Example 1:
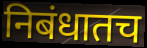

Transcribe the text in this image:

निबंधातच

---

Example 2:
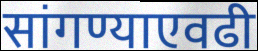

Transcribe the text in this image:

सांगण्याएवढी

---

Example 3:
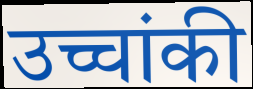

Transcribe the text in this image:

उच्चांकी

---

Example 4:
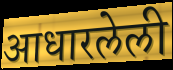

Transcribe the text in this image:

आधारलेली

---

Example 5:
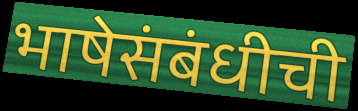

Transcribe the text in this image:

भाषेसंबंधीची